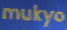
mukyo